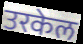
उरकेल